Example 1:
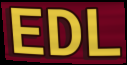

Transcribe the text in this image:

EDL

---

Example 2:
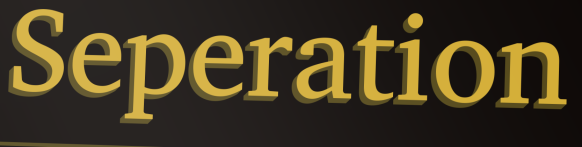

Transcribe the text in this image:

Seperation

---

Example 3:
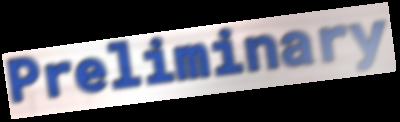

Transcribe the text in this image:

Preliminary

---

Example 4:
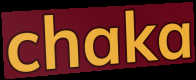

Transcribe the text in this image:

chaka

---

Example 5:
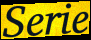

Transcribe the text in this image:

Serie